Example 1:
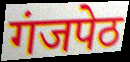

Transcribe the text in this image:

गंजपेठ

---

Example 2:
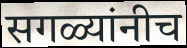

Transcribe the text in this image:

सगळ्यांनीच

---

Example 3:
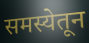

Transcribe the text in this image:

समस्येतून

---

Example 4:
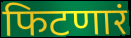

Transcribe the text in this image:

फिटणारं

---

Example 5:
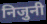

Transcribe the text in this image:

निजुनी